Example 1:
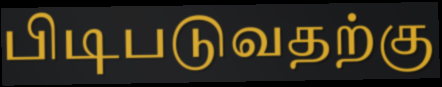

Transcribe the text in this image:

பிடிபடுவதற்கு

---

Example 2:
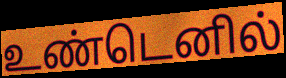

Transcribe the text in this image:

உண்டெனில்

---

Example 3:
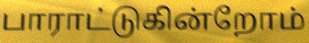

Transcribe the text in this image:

பாராட்டுகின்றோம்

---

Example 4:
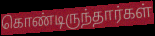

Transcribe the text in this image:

கொண்டிருந்தார்கள்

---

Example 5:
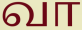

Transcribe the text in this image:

வா